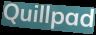
Quillpad